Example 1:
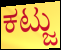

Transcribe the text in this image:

ಕಟ್ಜು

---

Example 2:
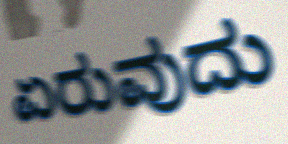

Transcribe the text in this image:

ಏರುವುದು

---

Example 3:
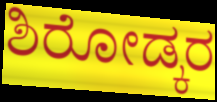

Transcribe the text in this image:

ಶಿರೋಡ್ಕರ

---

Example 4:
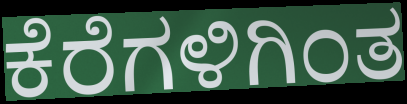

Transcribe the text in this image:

ಕೆರೆಗಳಿಗಿಂತ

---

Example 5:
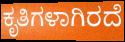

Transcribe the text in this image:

ಕೃತಿಗಳಾಗಿರದೆ